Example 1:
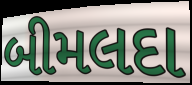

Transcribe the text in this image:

બીમલદા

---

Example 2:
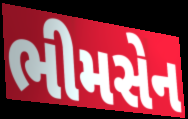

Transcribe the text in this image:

ભીમસેન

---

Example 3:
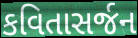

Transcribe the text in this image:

કવિતાસર્જન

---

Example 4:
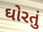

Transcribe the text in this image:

ઘોરતું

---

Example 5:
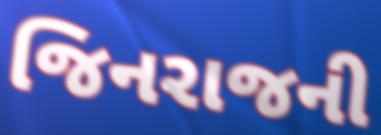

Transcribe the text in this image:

જિનરાજની